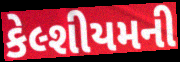
કેલ્શીયમની